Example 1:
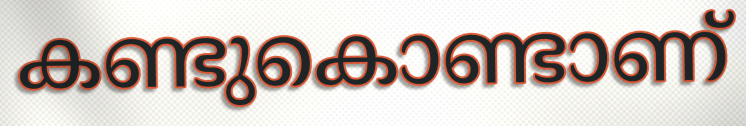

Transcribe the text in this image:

കണ്ടുകൊണ്ടാണ്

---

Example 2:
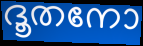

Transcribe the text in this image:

ദൂതനോ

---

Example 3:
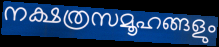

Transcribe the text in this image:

നക്ഷത്രസമൂഹങ്ങളും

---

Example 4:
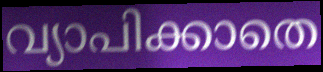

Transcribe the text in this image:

വ്യാപിക്കാതെ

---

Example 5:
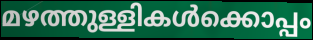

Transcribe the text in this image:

മഴത്തുള്ളികൾക്കൊപ്പം